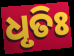
ଧୃତିଃ